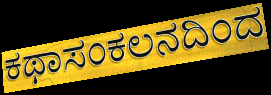
ಕಥಾಸಂಕಲನದಿಂದ